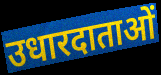
उधारदाताओं